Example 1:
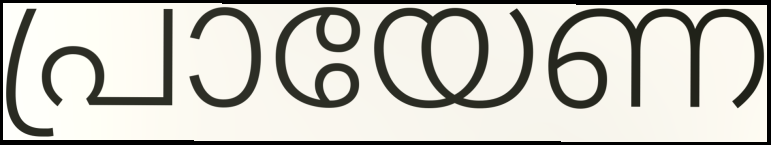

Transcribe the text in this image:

പ്രായേണ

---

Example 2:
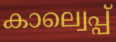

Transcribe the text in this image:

കാല്വെപ്പ്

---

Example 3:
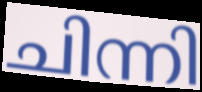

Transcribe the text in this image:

ചിന്നി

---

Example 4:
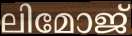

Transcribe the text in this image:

ലിമോജ്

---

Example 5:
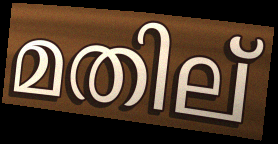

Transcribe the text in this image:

മതില്